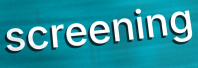
screening